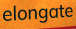
elongate